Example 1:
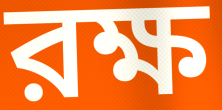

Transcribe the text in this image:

রক্ষ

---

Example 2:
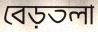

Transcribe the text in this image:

বেড়তলা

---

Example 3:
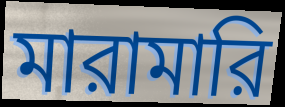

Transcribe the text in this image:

মারামারি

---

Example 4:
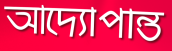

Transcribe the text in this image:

আদ্যোপান্ত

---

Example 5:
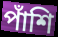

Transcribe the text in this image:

পাঁশি